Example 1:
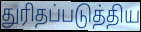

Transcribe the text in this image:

துரிதப்படுத்திய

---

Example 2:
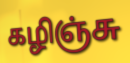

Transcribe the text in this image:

கழிஞ்சு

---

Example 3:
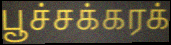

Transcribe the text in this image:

பூச்சக்கரக்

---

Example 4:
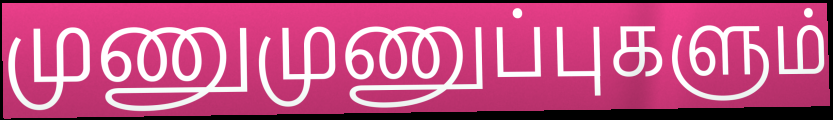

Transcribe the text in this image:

முணுமுணுப்புகளும்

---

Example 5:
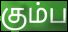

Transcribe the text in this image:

கும்ப